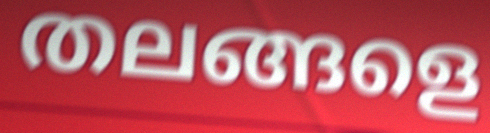
തലങ്ങളെ